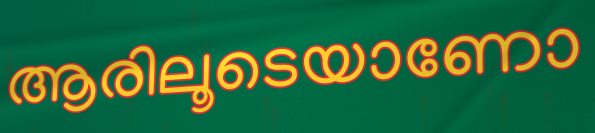
ആരിലൂടെയാണോ